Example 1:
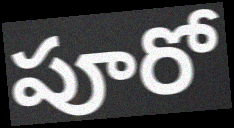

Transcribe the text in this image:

పూరో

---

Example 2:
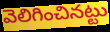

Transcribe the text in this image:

వెలిగించినట్టు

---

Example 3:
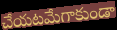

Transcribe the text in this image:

చేయటమేగాకుండా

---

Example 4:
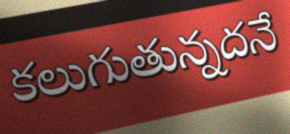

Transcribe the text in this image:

కలుగుతున్నదనే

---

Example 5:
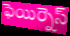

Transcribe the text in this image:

ఫెయిర్నెస్